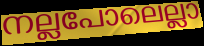
നല്ലപോലെല്ലാ